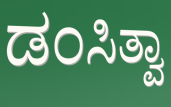
ಡಂಸಿತ್ವಾ